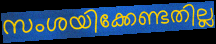
സംശയിക്കേണ്ടതില്ല